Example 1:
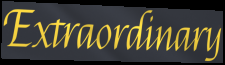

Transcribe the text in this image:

Extraordinary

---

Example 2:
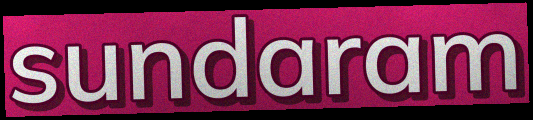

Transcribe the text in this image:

sundaram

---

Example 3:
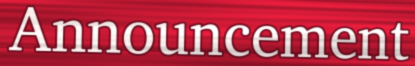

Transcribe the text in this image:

Announcement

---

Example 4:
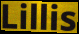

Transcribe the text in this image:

Lillis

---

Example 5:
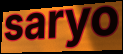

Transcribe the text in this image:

saryo